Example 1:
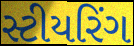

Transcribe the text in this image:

સ્ટીયરિંગ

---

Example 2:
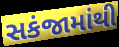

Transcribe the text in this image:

સકંજામાંથી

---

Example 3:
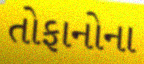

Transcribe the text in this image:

તોફાનોના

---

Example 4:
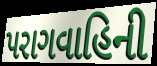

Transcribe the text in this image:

પરાગવાહિની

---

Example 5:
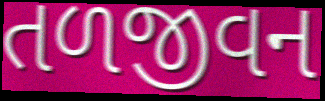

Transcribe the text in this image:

તળજીવન